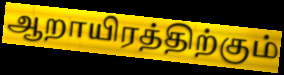
ஆறாயிரத்திற்கும்